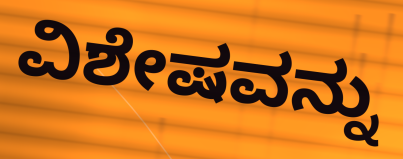
ವಿಶೇಷವನ್ನು